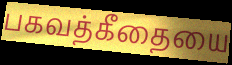
பகவத்கீதையை